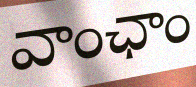
వాంఛాం